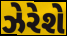
ઝેરેશે